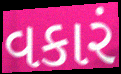
વકારં